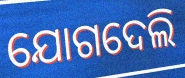
ଯୋଗଦେଲି